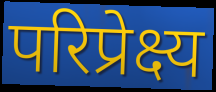
परिप्रेक्ष्य